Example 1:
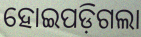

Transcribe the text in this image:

ହୋଇପଡ଼ିଗଲା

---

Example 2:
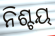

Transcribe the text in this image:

ନିଶ୍ଚୟ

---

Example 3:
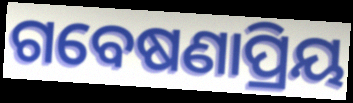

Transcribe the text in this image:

ଗବେଷଣାପ୍ରିୟ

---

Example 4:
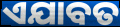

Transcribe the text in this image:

ଏଯାବତ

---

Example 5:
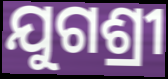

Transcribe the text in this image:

ଯୁଗଶ୍ରୀ